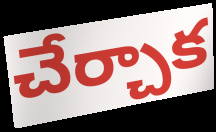
చేర్చాక